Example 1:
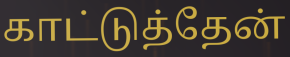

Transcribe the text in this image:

காட்டுத்தேன்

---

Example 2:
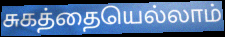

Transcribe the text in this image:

சுகத்தையெல்லாம்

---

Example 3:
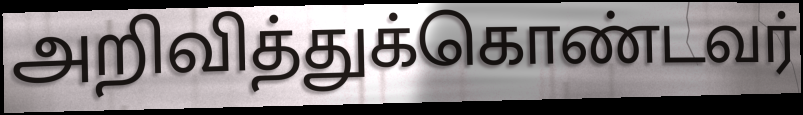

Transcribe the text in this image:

அறிவித்துக்கொண்டவர்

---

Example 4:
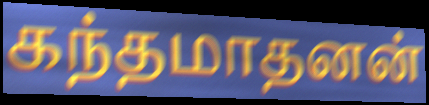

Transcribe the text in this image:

கந்தமாதனன்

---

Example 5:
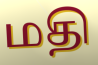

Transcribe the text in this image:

மதி